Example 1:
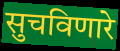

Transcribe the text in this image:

सुचविणारे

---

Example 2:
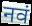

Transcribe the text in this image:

नवं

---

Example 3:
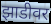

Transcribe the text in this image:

झाडीवर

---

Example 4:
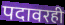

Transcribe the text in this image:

पदावरही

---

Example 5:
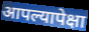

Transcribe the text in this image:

आपल्यापेक्षा